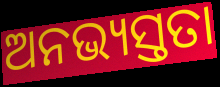
ଅନଭ୍ୟସ୍ତତା